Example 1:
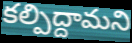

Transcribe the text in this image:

కల్పిద్దామని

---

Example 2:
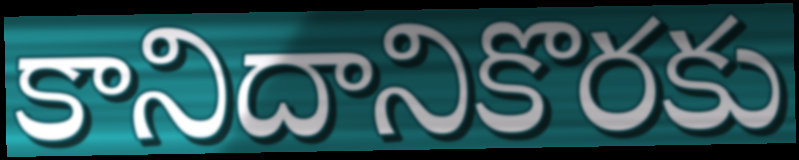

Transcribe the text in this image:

కానిదానికొరకు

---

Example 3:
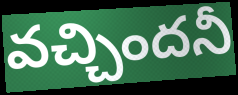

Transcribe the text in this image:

వచ్చిందనీ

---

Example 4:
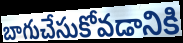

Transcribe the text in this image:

బాగుచేసుకోవడానికి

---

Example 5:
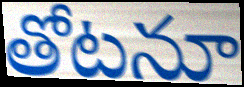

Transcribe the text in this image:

తోటనూ